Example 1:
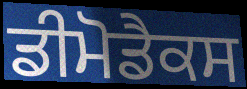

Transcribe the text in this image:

ਡੀਮੋਡੈਕਸ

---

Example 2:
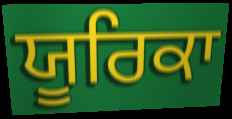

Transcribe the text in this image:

ਯੂਰਿਕਾ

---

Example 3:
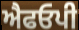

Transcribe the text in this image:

ਐਫਓਪੀ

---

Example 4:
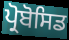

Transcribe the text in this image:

ਪ੍ਰੋਬੋਸਿਡ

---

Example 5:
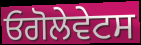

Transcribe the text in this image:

ਓਗੋਲੇਵੇਟਸ